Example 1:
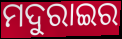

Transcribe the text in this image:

ମଦୁରାଇର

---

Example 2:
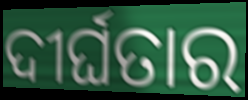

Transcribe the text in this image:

ଦୀର୍ଘତାର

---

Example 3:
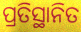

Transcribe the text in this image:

ପ୍ରତିସ୍ଥାନିତ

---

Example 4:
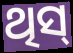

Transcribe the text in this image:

ଥିସ୍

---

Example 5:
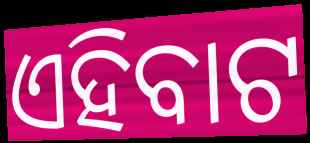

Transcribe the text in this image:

ଏହିବାଟ